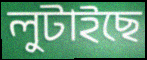
লুটাইছে